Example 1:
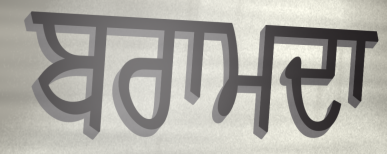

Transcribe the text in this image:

ਬਰਾਮਦਾ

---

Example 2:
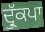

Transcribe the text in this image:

ਦ੍ਰੁੱਕਪਾ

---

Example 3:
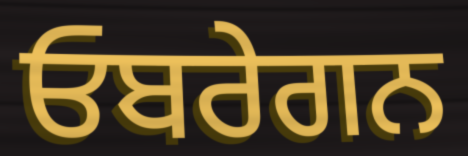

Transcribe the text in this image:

ਓਬਰੇਗਨ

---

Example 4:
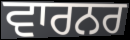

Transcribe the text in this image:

ਵਾਰਨਰ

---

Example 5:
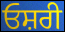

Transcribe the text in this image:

ਓਸ਼ਰੀ